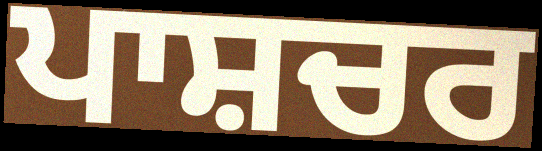
ਪਾਸ਼ਚਰ